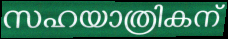
സഹയാത്രികന്